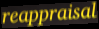
reappraisal